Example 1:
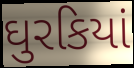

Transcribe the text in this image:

ઘુરકિયાં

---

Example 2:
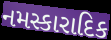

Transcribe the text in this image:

નમસ્કારાદિક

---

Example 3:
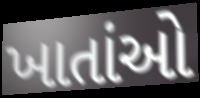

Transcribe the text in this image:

ખાતાંઓ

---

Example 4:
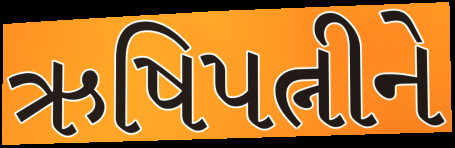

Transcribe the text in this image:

ઋષિપત્નીને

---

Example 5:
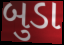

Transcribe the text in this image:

બુડા